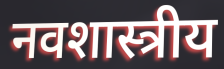
नवशास्त्रीय